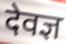
देवज्ञ